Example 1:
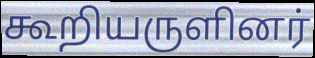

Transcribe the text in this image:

கூறியருளினர்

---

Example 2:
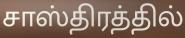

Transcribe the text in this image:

சாஸ்திரத்தில்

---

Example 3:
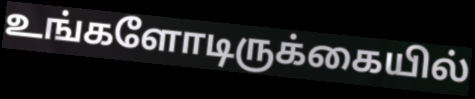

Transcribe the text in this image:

உங்களோடிருக்கையில்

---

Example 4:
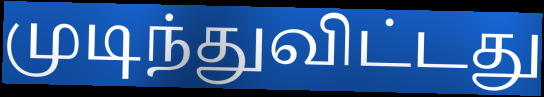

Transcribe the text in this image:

முடிந்துவிட்டது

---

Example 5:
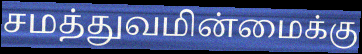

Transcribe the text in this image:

சமத்துவமின்மைக்கு